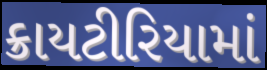
ક્રાયટીરિયામાં